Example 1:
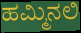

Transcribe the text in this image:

ಹಮ್ಮಿನಲಿ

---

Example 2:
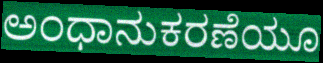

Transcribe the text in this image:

ಅಂಧಾನುಕರಣೆಯೂ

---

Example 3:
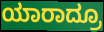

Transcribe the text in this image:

ಯಾರಾದ್ರೂ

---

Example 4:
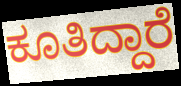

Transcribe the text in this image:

ಕೂತಿದ್ದಾರೆ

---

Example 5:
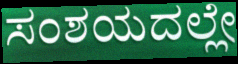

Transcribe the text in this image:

ಸಂಶಯದಲ್ಲೇ